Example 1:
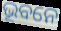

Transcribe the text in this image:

ଭୂବନେ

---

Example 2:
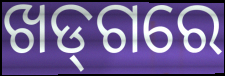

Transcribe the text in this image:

ଖଡ୍‌ଗରେ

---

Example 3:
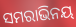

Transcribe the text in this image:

ସମରାଭିନୟ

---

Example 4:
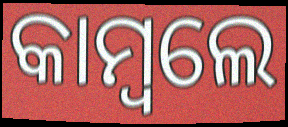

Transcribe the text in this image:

କାମ୍ବଲେ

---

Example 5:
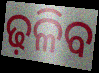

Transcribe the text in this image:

ଢ଼ଳିବ